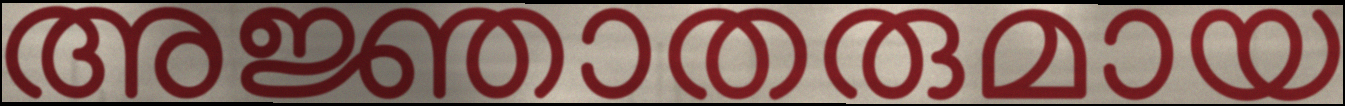
അജ്ഞാതരുമായ